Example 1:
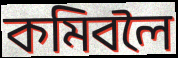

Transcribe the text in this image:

কমিবলৈ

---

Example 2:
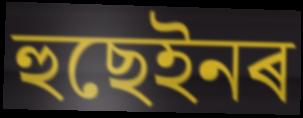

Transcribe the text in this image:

হুছেইনৰ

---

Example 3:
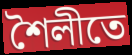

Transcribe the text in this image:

শৈলীতে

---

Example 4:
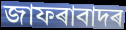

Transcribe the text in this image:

জাফৰাবাদৰ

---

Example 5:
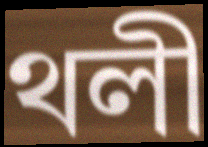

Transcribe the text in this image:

থলী